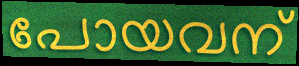
പോയവന്